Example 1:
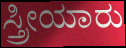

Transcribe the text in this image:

ಸ್ತ್ರೀಯಾರು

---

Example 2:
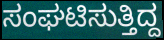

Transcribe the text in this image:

ಸಂಘಟಿಸುತ್ತಿದ್ದ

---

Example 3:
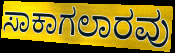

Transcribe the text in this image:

ಸಾಕಾಗಲಾರವು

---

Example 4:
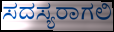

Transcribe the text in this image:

ಸದಸ್ಯರಾಗಲಿ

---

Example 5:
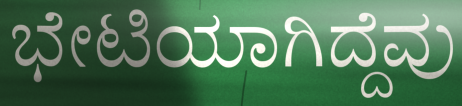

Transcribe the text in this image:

ಭೇಟಿಯಾಗಿದ್ದೆವು